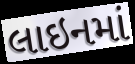
લાઇનમાં